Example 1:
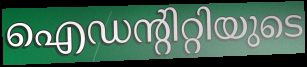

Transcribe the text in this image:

ഐഡന്റിറ്റിയുടെ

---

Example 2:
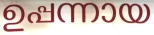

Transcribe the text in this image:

ഉപ്പന്നായ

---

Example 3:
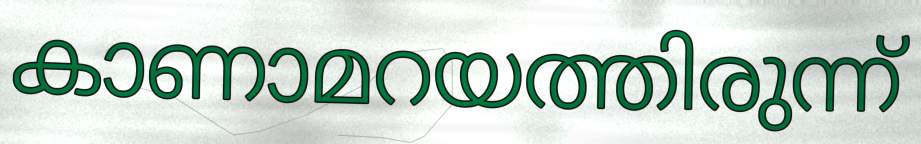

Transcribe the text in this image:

കാണാമറയത്തിരുന്ന്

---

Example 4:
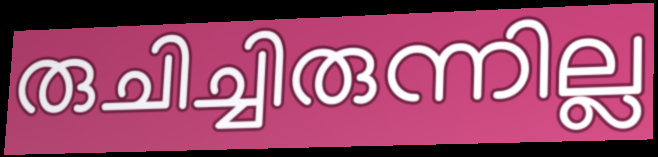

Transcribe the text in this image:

രുചിച്ചിരുന്നില്ല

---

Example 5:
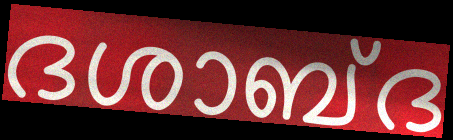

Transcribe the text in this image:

ദശാബ്ദ